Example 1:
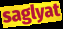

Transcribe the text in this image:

saglyat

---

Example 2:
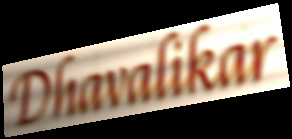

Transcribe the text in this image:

Dhavalikar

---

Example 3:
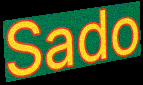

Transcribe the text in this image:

Sado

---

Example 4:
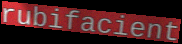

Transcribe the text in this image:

rubifacient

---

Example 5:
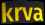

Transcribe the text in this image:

krva